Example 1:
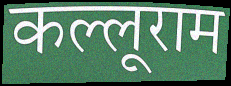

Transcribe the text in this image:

कल्लूराम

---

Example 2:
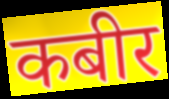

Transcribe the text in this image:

कबीर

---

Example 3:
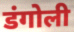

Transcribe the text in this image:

डंगोली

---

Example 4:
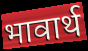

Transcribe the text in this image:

भावार्थ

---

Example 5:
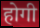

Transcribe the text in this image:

होगी